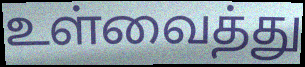
உள்வைத்து